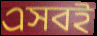
এসবই